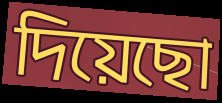
দিয়েছো